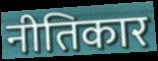
नीतिकार